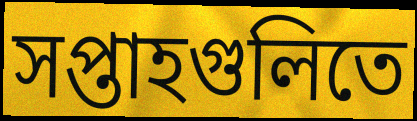
সপ্তাহগুলিতে